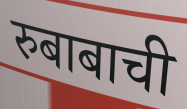
रुबाबाची